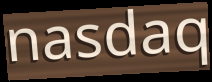
nasdaq